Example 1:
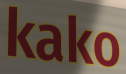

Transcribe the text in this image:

kako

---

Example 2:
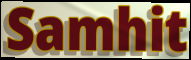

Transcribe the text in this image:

Samhit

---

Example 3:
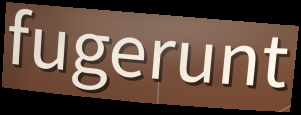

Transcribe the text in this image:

fugerunt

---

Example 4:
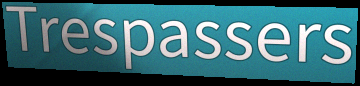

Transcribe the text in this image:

Trespassers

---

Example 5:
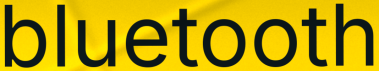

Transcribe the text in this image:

bluetooth